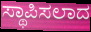
ಸ್ಥಾಪಿಸಲಾದ